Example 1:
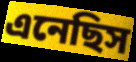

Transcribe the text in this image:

এনেছিস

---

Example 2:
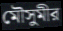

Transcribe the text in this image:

মৌসুমীর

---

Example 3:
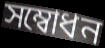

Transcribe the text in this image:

সম্বোধন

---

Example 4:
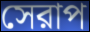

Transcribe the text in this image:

সেরাপ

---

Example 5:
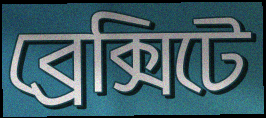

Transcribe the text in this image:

ব্রেক্সিটে